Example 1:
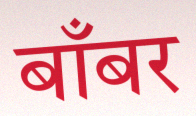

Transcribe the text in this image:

बाँबर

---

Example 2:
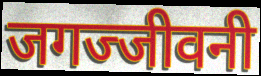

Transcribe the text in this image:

जगज्जीवनी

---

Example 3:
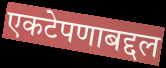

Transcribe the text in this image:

एकटेपणाबद्दल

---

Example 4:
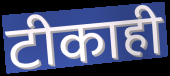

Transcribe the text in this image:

टीकाही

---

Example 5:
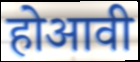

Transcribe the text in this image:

होआवी